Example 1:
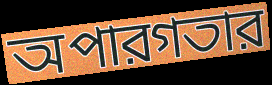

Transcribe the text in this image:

অপারগতার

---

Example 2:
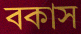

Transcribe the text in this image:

বকাস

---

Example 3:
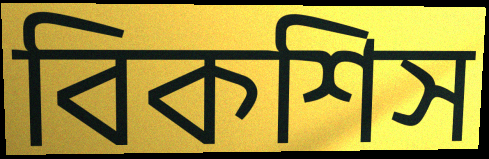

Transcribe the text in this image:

বিকশিস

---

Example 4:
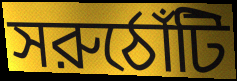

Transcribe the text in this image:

সরুঠোঁটি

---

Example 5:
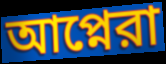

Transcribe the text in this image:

আপ্নেরা